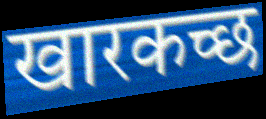
खारकच्छ